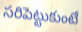
సరిపెట్టుకుంటే